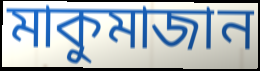
মাকুমাজান